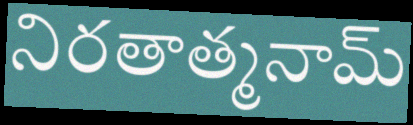
నిరతాత్మనామ్